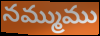
నమ్ముము